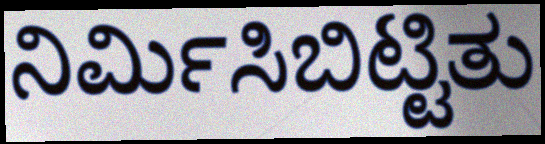
ನಿರ್ಮಿಸಿಬಿಟ್ಟಿತು